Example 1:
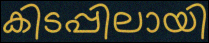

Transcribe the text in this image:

കിടപ്പിലായി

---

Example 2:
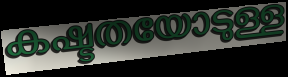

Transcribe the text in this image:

കഷ്ടതയോടുള്ള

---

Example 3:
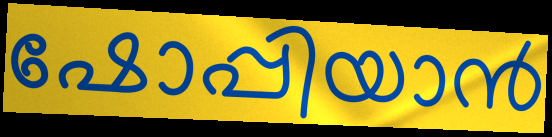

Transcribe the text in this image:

ഷോപ്പിയാൻ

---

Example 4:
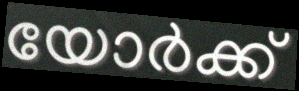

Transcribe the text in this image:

യോർക്ക്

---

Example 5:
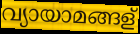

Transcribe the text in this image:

വ്യായാമങ്ങള്